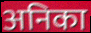
अनिका